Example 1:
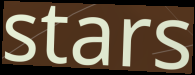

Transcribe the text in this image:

stars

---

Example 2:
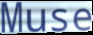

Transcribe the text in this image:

Muse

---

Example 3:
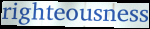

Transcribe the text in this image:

righteousness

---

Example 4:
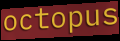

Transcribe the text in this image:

octopus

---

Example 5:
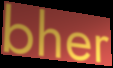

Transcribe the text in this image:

bher